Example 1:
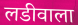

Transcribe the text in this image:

लडीवाला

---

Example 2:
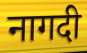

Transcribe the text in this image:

नागदी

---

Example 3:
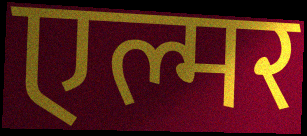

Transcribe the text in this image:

एल्मर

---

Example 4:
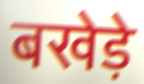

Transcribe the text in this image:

बखेड़े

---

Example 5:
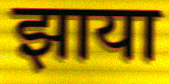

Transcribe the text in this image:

झाया